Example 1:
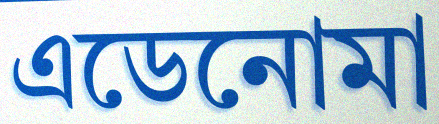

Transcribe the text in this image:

এডেনোমা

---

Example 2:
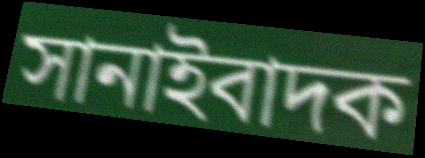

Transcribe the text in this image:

সানাইবাদক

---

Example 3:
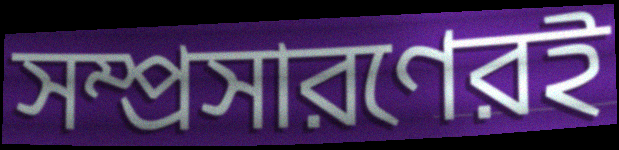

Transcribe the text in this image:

সম্প্রসারণেরই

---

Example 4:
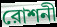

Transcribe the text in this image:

রোশনী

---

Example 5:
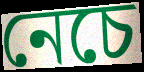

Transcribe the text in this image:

নেচে